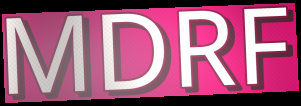
MDRF